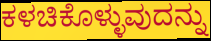
ಕಳಚಿಕೊಳ್ಳುವುದನ್ನು